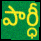
పార్ధీ